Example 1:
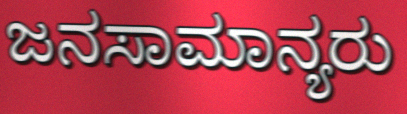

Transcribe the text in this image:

ಜನಸಾಮಾನ್ಯರು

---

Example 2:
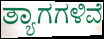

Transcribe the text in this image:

ತ್ಯಾಗಗಳಿವೆ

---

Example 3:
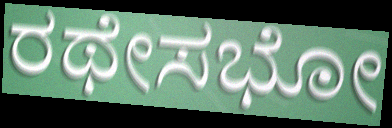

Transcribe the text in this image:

ರಥೇಸಭೋ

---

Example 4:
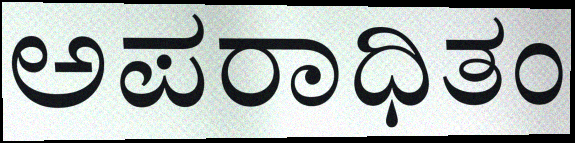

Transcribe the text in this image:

ಅಪರಾಧಿತಂ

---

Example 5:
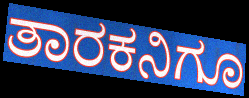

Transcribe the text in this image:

ತಾರಕನಿಗೂ